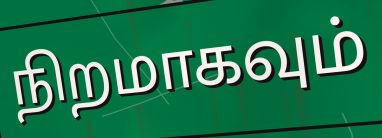
நிறமாகவும்